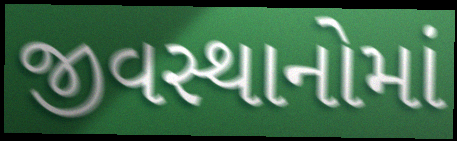
જીવસ્થાનોમાં